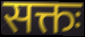
सक्तः